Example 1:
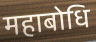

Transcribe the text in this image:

महाबोधि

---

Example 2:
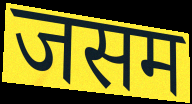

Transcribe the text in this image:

जसम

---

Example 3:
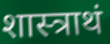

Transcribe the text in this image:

शास्त्राथं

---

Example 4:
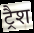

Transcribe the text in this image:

ट्रैश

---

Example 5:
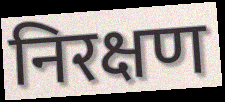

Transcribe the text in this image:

निरक्षण